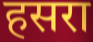
हसरा